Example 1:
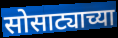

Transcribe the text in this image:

सोसाट्याच्या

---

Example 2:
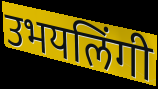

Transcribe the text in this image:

उभयलिंगी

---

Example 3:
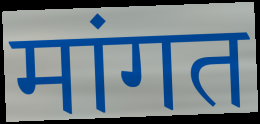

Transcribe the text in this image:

मांगत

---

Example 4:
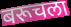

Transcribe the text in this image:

बरूचला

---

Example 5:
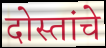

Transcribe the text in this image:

दोस्तांचे